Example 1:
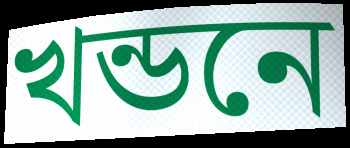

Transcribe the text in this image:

খন্ডনে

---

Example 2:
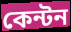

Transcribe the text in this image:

কেন্টন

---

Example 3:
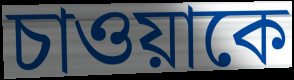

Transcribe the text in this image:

চাওয়াকে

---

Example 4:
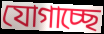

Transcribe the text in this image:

যোগাচ্ছে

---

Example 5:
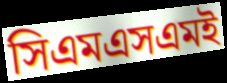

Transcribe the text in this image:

সিএমএসএমই